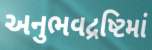
અનુભવદ્રષ્ટિમાં